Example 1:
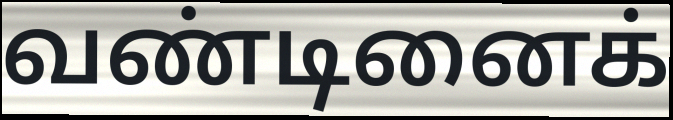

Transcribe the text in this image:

வண்டினைக்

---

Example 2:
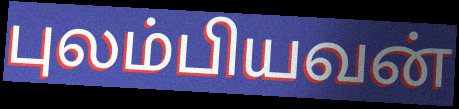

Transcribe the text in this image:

புலம்பியவன்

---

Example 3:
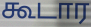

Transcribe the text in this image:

கூடார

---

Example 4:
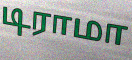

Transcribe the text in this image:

டிராமா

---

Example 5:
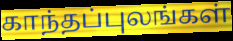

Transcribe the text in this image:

காந்தப்புலங்கள்